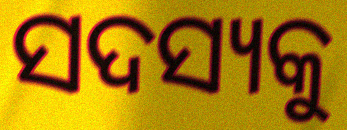
ସଦସ୍ୟକୁ